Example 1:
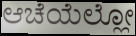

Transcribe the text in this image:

ಆಚೆಯೆಲ್ಲೋ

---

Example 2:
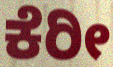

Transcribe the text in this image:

ಕೆರೀ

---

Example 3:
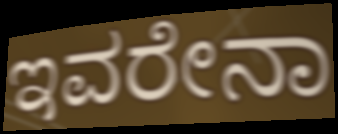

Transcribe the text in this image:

ಇವರೇನಾ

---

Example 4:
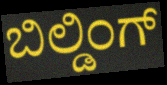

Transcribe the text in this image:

ಬಿಲ್ಡಿಂಗ್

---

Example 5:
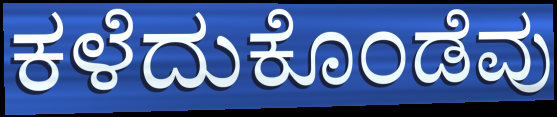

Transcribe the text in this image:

ಕಳೆದುಕೊಂಡೆವು